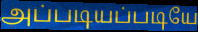
அப்படியப்படியே